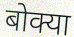
बोक्या